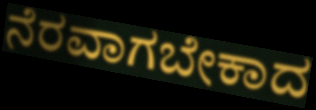
ನೆರವಾಗಬೇಕಾದ